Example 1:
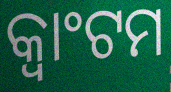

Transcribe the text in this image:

କ୍ୱାଂଟମ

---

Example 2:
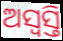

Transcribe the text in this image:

ଅସ୍ୱସ୍ତି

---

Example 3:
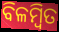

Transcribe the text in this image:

ବିଳମ୍ବିତ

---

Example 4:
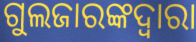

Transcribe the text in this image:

ଗୁଲଜାରଙ୍କଦ୍ୱାରା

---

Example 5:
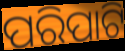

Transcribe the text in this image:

ପରିପାଟି